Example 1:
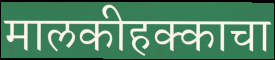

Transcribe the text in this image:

मालकीहक्काचा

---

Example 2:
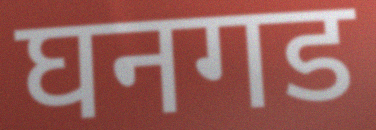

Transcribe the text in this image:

घनगड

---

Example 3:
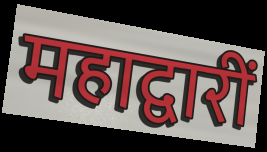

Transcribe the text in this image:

महाद्वारीं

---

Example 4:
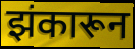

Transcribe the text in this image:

झंकारून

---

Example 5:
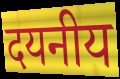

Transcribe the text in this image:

दयनीय